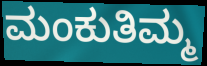
ಮಂಕುತಿಮ್ಮ